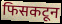
फिसकटून